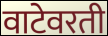
वाटेवरती